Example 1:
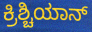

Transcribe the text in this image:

ಕ್ರಿಶ್ಚಿಯಾನ್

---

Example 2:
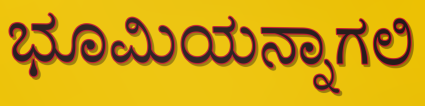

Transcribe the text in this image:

ಭೂಮಿಯನ್ನಾಗಲಿ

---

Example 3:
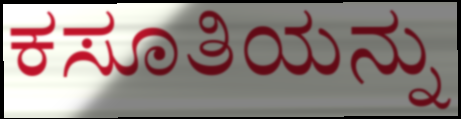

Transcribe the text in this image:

ಕಸೂತಿಯನ್ನು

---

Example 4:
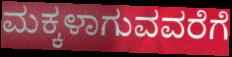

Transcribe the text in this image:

ಮಕ್ಕಳಾಗುವವರೆಗೆ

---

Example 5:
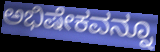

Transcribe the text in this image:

ಅಭಿಷೇಕವನ್ನೂ